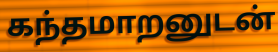
கந்தமாறனுடன்